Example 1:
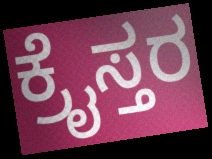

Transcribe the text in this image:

ಕ್ರೈಸ್ತರ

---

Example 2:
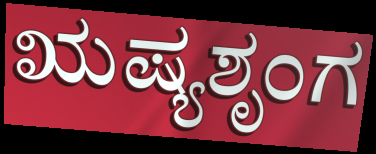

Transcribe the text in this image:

ಋಷ್ಯಶೃಂಗ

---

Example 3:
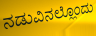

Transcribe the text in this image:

ನಡುವಿನಲ್ಲೊಂದು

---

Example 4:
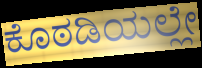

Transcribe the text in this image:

ಕೊಠಡಿಯಲ್ಲೇ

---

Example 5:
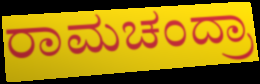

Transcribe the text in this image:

ರಾಮಚಂದ್ರಾ